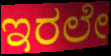
ಇರಲೇ